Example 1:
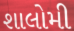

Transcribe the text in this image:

શાલોમી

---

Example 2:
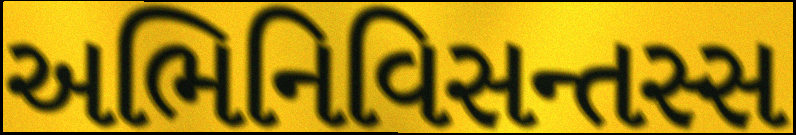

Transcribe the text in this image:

અભિનિવિસન્તસ્સ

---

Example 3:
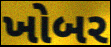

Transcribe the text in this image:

ખોબર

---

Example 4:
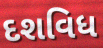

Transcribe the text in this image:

દશવિધ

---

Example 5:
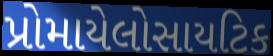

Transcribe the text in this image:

પ્રોમાયેલોસાયટિક